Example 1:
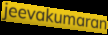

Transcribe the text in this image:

jeevakumaran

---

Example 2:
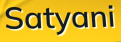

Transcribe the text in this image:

Satyani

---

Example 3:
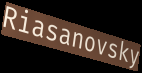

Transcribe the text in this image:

Riasanovsky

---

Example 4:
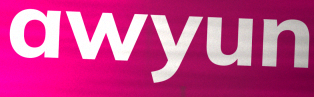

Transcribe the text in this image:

awyun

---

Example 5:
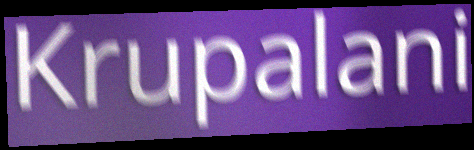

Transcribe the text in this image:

Krupalani